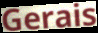
Gerais